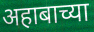
अहाबाच्या